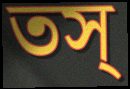
তস্